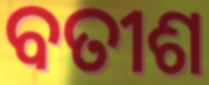
ବତୀଶ